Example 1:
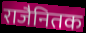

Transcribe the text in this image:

राजैनितक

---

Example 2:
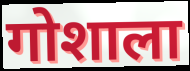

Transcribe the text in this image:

गोशाला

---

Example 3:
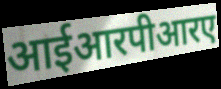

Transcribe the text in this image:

आईआरपीआरए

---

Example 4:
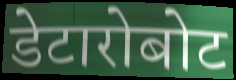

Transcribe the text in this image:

डेटारोबोट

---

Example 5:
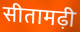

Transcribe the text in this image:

सीतामढ़ी